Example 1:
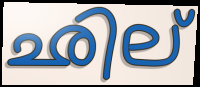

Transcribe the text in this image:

ഛില്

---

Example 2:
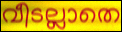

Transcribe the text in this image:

വീടല്ലാതെ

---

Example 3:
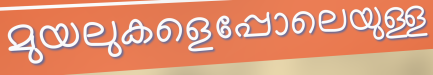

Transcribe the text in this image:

മുയലുകളെപ്പോലെയുള്ള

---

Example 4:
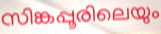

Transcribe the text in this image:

സിങ്കപ്പൂരിലെയും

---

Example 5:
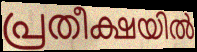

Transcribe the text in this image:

പ്രതീക്ഷയിൽ